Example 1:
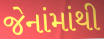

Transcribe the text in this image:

જેનાંમાંથી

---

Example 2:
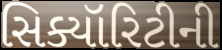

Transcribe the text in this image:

સિક્યૉરિટીની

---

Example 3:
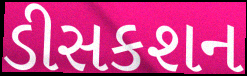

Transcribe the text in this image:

ડીસકશન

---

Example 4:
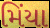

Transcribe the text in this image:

મિંયા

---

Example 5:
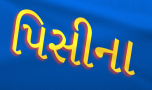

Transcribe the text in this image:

પિસીના